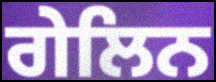
ਗੇਲਿਨ